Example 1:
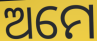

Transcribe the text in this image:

ଅମେ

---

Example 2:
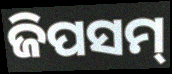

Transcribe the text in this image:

ଜିପସମ୍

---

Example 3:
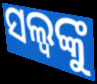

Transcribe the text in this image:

ସଲ୍ୱଙ୍କୁ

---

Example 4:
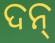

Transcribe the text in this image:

ଦନ୍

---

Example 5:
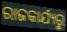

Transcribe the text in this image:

ରାଜକାର୍ଯ୍ୟରୁ